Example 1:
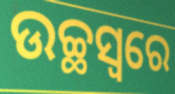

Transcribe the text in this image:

ଉଚ୍ଛସ୍ୱରେ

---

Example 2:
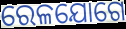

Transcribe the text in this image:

ରେଳଯୋଗେ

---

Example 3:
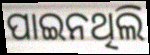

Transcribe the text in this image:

ପାଇନଥିଲି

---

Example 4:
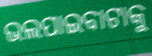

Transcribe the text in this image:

ଭଲପାଇବାଟାକୁ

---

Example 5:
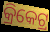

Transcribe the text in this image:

କ୍ରିକେଟ୍ର